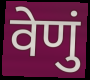
वेणुं